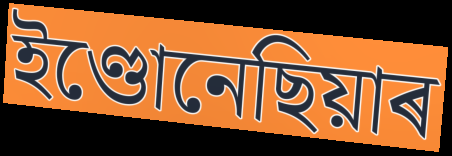
ইণ্ডোনেছিয়াৰ